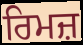
ਰਿਮਜ਼